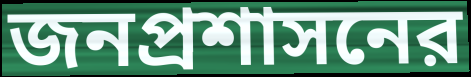
জনপ্রশাসনের